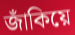
জাঁকিয়ে